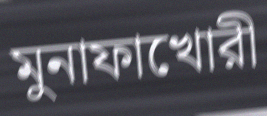
মুনাফাখোরী